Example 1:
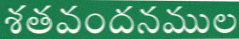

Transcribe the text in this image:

శతవందనముల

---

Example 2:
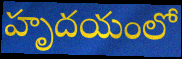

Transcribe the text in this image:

హృదయంలో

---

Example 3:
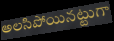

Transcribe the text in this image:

అలసిపోయినట్టుగా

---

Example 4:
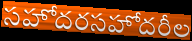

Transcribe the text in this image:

సహోదరసహోదరీల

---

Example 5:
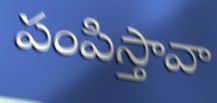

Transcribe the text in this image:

పంపిస్తావా